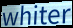
whiter